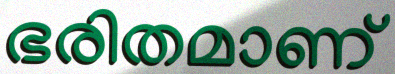
ഭരിതമാണ്